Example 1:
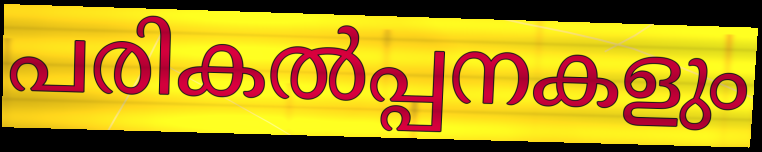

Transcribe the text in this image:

പരികൽപ്പനകളും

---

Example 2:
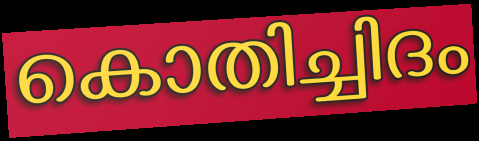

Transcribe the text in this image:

കൊതിച്ചിദം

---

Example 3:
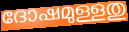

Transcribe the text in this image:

ദോഷമുള്ളതു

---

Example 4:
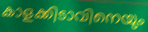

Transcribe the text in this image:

കാളക്കിടാവിനെയും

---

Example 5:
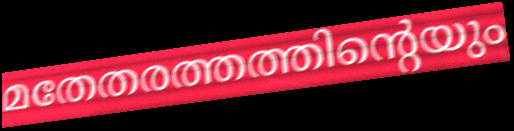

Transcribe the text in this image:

മതേതരത്തത്തിന്റെയും